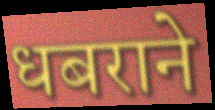
धबराने